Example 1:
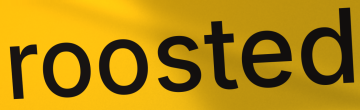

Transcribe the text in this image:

roosted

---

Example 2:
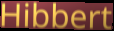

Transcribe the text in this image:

Hibbert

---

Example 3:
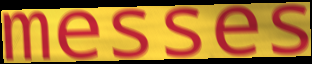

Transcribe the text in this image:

messes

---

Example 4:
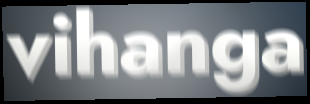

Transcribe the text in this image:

vihanga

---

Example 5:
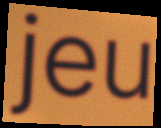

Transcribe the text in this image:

jeu